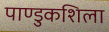
पाण्डुकशिला